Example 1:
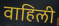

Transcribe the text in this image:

वाहिली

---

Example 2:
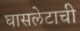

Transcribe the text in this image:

घासलेटाची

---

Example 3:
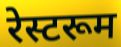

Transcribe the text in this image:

रेस्टरूम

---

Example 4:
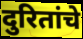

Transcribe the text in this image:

दुरितांचे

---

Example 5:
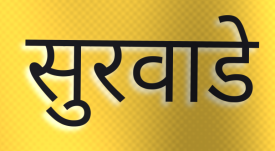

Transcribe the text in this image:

सुरवाडे